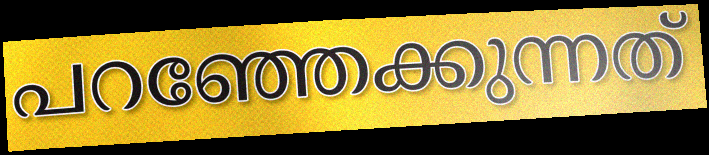
പറഞ്ഞേക്കുന്നത്